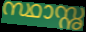
സ്ഥാസ്നു